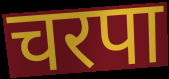
चरपा